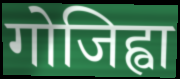
गोजिह्वा